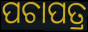
ପଚାପତ୍ର